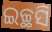
ଇଚ୍ଛସି